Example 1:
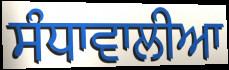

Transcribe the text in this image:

ਸੰਧਾਵਾਲੀਆ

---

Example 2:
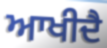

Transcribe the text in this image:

ਆਖੀਦੈ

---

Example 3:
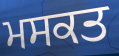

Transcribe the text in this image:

ਮਸਕਤ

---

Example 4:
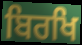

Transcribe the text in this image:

ਬਿਰਖਿ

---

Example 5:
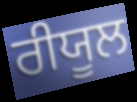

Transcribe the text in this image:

ਰੀਯੂਲ